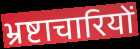
भ्रष्टाचारियों